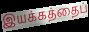
இயக்கத்தைப்